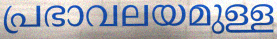
പ്രഭാവലയമുള്ള